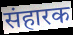
संहारक